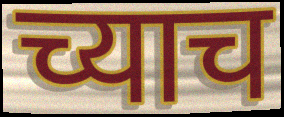
च्याच